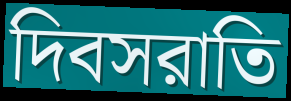
দিবসরাতি